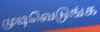
முடிவெடுங்க